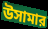
উসামার